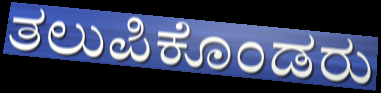
ತಲುಪಿಕೊಂಡರು